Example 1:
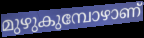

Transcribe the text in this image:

മുഴുകുമ്പോഴാണ്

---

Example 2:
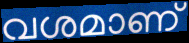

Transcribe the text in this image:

വശമാണ്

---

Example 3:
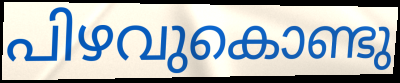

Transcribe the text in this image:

പിഴവുകൊണ്ടു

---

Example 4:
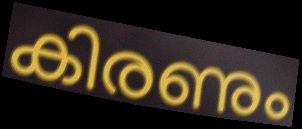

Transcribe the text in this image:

കിരണും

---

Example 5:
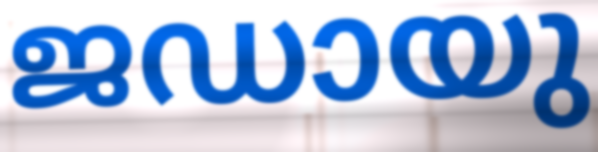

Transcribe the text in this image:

ജഡായു